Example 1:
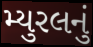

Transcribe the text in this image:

મ્યુરલનું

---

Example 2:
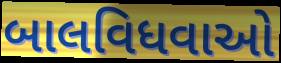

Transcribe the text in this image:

બાલવિધવાઓ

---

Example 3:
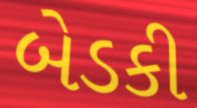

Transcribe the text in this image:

બેડકી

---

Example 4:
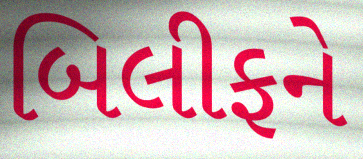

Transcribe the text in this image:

બિલીફને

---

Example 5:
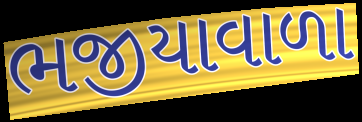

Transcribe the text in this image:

ભજીયાવાળા